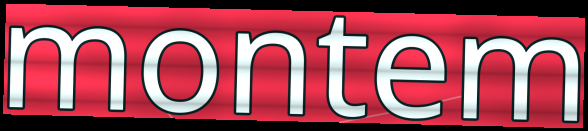
montem